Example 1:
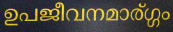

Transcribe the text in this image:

ഉപജീവനമാര്ഗ്ഗം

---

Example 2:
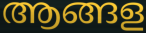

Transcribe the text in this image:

ആങ്ങള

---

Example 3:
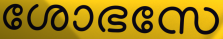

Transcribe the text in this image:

ശോഭസേ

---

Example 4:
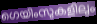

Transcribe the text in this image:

ഗെയിംസുകളിലും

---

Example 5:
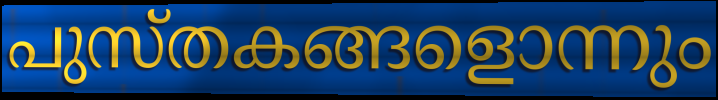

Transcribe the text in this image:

പുസ്തകങ്ങളൊന്നും